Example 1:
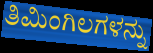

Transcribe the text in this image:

ತಿಮಿಂಗಿಲಗಳನ್ನು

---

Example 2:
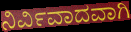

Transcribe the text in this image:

ನಿರ್ವಿವಾದವಾಗಿ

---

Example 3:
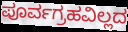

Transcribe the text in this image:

ಪೂರ್ವಗ್ರಹವಿಲ್ಲದ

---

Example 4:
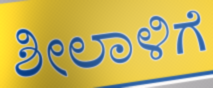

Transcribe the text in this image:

ಶೀಲಾಳಿಗೆ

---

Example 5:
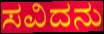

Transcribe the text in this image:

ಸವಿದನು